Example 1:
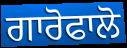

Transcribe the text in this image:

ਗਾਰੋਫਾਲੋ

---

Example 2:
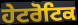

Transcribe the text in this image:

ਹੇਟਰੋਟਿਕ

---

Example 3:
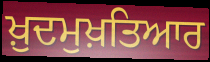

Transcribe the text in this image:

ਖ਼ੁਦਮੁਖ਼ਤਿਆਰ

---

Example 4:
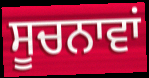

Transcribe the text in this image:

ਸੂਚਨਾਵਾਂ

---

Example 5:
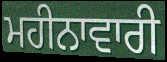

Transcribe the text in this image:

ਮਹੀਨਾਵਾਰੀ